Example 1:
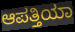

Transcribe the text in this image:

ಆಪತ್ತಿಯಾ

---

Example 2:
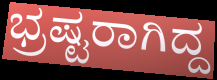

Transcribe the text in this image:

ಭ್ರಷ್ಟರಾಗಿದ್ದ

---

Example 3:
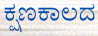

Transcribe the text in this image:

ಕ್ಷಣಕಾಲದ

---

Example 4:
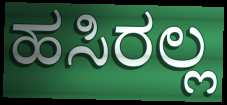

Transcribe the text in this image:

ಹಸಿರಲ್ಲ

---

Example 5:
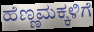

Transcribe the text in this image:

ಹೆಣ್ಣಮಕ್ಕಳಿಗೆ